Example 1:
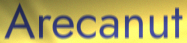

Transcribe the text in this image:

Arecanut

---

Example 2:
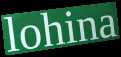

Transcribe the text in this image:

lohina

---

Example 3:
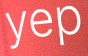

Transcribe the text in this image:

yep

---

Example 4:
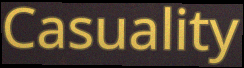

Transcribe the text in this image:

Casuality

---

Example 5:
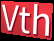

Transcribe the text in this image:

Vth